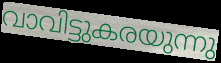
വാവിട്ടുകരയുന്നു